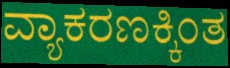
ವ್ಯಾಕರಣಕ್ಕಿಂತ